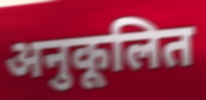
अनुकूलित